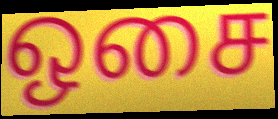
ஒசை